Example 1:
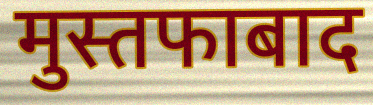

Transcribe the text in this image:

मुस्तफाबाद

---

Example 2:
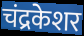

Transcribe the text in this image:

चंद्रकेशर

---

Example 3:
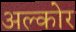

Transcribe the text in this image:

अल्कोर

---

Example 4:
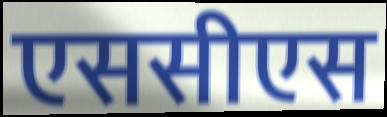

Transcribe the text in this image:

एससीएस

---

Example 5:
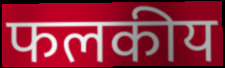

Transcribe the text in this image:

फलकीय